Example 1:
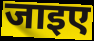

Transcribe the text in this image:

जाइए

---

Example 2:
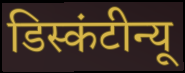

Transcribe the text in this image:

डिस्कंटीन्यू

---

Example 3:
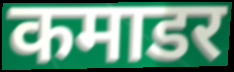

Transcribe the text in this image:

कमाडर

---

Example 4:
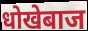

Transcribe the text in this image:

धोखेबाज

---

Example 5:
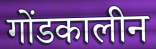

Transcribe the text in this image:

गोंडकालीन